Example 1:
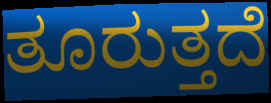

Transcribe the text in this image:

ತೂರುತ್ತದೆ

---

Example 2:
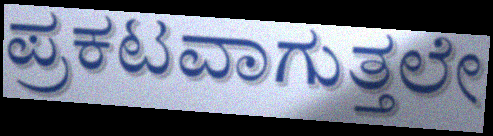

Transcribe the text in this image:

ಪ್ರಕಟವಾಗುತ್ತಲೇ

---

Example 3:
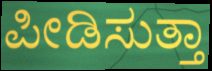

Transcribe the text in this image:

ಪೀಡಿಸುತ್ತಾ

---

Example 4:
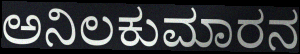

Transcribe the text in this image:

ಅನಿಲಕುಮಾರನ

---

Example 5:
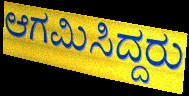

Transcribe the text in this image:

ಆಗಮಿಸಿದ್ದರು